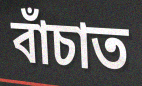
বাঁচাত